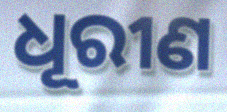
ଧୂରୀଣ